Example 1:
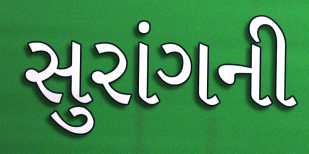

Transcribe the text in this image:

સુરાંગની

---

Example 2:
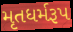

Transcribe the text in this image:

મૃતધર્મરૂપ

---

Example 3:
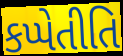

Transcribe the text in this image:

કપ્પેતીતિ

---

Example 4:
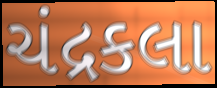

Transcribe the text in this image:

ચંદ્રકલા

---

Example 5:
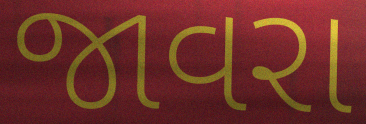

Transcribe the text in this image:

જાવરા